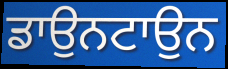
ਡਾਉਨਟਾਉਨ